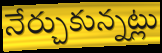
నేర్చుకున్నట్లు